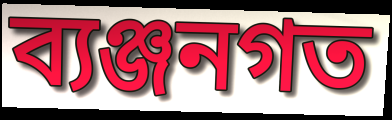
ব্যঞ্জনগত